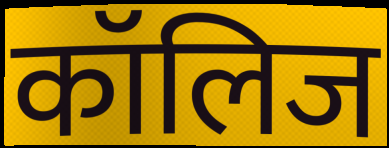
कॉलिज